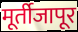
मूर्तीजापूर